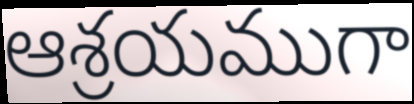
ఆశ్రయముగా